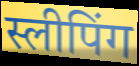
स्लीपिंग